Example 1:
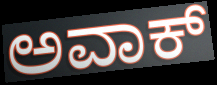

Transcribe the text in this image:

ಅವಾಕ್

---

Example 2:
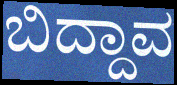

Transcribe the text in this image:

ಬಿದ್ದಾವ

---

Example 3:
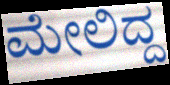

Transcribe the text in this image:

ಮೇಲಿದ್ದ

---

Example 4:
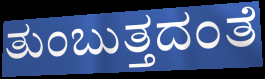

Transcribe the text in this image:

ತುಂಬುತ್ತದಂತೆ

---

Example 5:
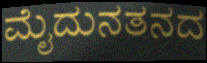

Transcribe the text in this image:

ಮೈದುನತನದ